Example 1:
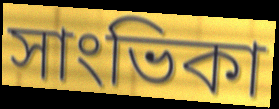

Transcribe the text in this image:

সাংভিকা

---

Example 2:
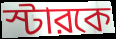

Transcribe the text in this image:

স্টারকে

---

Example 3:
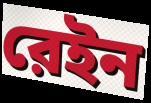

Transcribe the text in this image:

রেইন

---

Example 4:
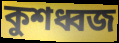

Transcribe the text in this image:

কুশধ্বজ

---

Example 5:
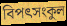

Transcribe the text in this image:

বিপৎসংকুল